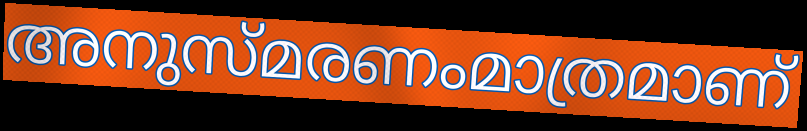
അനുസ്മരണംമാത്രമാണ്